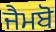
ਜੈਮਬੋ